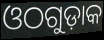
ଓଠଗୁଡ଼ାକ